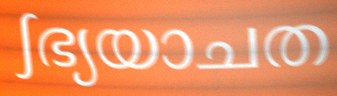
ഽഭ്യയാചത